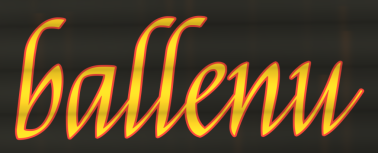
ballenu